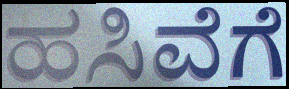
ಹಸಿವೆಗೆ